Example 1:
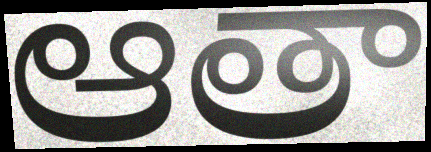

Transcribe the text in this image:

ఆతా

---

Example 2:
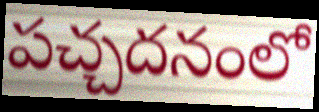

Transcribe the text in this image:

పచ్చదనంలో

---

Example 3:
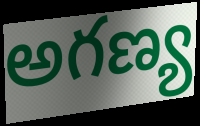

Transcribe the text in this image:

అగణ్య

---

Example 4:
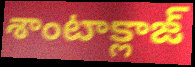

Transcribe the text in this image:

శాంటాక్లాజ్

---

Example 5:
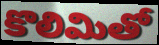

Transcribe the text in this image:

కొలిమితో